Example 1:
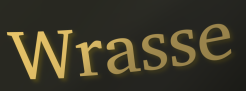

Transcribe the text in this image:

Wrasse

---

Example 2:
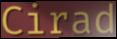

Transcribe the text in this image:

Cirad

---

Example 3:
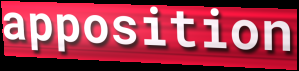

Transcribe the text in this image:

apposition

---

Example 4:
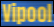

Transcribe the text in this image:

Vipool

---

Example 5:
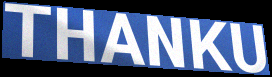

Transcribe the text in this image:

THANKU